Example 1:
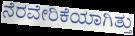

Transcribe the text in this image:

ನೆರವೇರಿಕೆಯಾಗಿತ್ತು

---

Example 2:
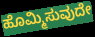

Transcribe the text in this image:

ಹೊಮ್ಮಿಸುವುದೇ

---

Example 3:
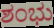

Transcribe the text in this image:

ಶಂಭು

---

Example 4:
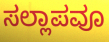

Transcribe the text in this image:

ಸಲ್ಲಾಪವೂ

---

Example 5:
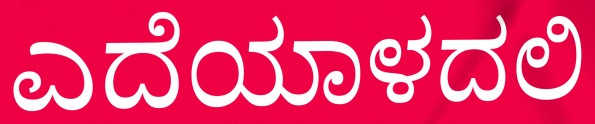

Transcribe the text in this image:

ಎದೆಯಾಳದಲಿ